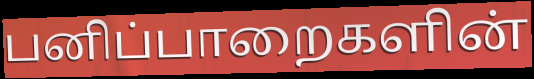
பனிப்பாறைகளின்